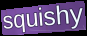
squishy